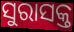
ସୁରାସକ୍ତ